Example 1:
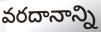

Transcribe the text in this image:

వరదానాన్ని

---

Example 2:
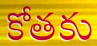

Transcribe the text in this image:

కోతకు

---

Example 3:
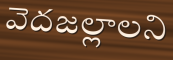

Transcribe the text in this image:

వెదజల్లాలని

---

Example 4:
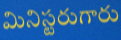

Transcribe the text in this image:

మినిస్టరుగారు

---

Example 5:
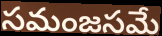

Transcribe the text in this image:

సమంజసమే